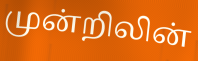
முன்றிலின்